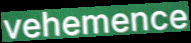
vehemence